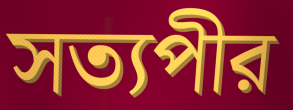
সত্যপীর